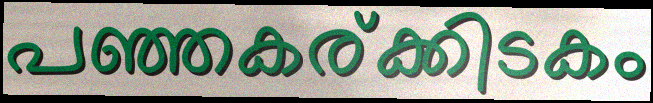
പഞ്ഞകര്ക്കിടകം